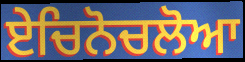
ਏਚਿਨੋਚਲੋਆ